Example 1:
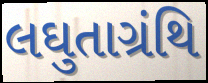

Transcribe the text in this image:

લઘુતાગ્રંથિ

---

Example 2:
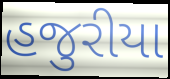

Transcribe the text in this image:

હજુરીયા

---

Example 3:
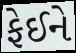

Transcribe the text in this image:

ફેઈને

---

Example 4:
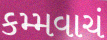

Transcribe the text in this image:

કમ્મવાચં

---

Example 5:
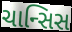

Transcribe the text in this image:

ચાન્સિસ